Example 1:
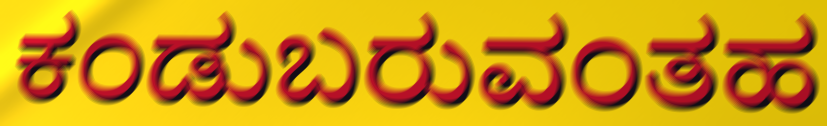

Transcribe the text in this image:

ಕಂಡುಬರುವಂತಹ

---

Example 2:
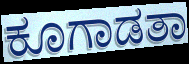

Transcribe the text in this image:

ಕೂಗಾಡತಾ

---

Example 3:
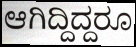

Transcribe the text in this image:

ಆಗಿದ್ದಿದ್ದರೂ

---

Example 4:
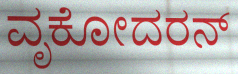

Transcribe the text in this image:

ವೃಕೋದರನ್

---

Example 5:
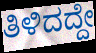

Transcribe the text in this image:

ತಿಳಿದದ್ದೇ